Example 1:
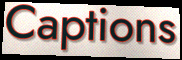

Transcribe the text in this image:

Captions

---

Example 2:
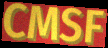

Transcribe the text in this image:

CMSF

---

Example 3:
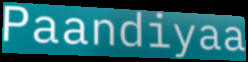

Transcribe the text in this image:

Paandiyaa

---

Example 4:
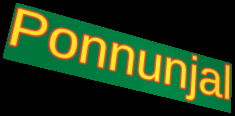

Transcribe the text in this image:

Ponnunjal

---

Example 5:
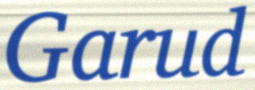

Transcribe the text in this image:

Garud